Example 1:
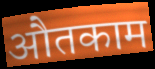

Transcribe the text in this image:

औतकाम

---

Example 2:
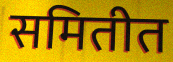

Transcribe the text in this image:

समितीत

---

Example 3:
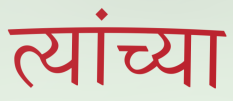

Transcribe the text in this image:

त्यांच्या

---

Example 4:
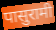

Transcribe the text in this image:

पासुरामी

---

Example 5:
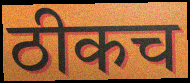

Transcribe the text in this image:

ठीकच